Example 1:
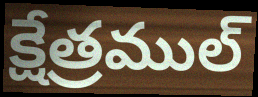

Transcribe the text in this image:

క్షేత్రముల్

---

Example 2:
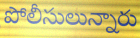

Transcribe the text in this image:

పోలీసులున్నారు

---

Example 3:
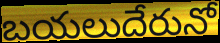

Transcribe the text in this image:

బయలుదేరునో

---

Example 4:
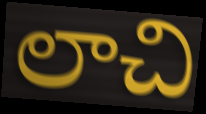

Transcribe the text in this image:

లాచి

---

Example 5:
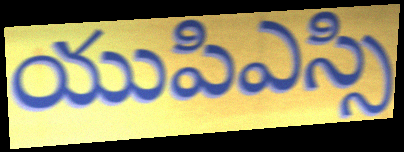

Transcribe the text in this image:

యుపిఎస్సి